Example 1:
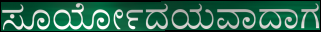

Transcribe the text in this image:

ಸೂರ್ಯೋದಯವಾದಾಗ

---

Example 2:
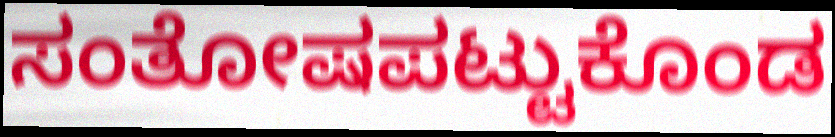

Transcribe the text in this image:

ಸಂತೋಷಪಟ್ಟುಕೊಂಡ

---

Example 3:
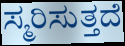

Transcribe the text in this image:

ಸ್ಮರಿಸುತ್ತದೆ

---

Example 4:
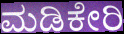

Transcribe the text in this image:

ಮಡಿಕೇರಿ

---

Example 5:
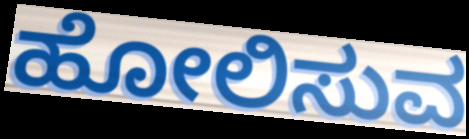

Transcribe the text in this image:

ಹೋಲಿಸುವ